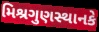
મિશ્રગુણસ્થાનકે